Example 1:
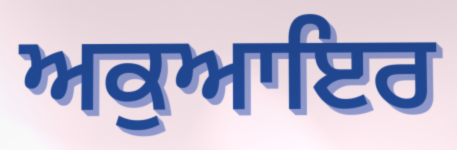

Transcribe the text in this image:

ਅਕੁਆਇਰ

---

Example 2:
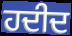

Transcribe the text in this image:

ਹਦੀਦ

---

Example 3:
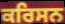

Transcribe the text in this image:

ਕਰਿਸਨ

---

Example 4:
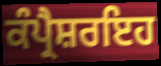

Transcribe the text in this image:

ਕੰਪ੍ਰੈਸ਼ਰਇਹ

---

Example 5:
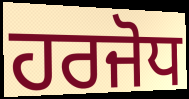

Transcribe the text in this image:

ਹਰਜੋਧ